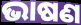
ଭାଷଣ